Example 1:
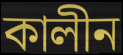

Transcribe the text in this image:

কালীন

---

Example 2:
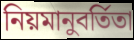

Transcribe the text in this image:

নিয়মানুবর্তিতা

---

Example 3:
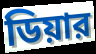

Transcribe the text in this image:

ডিয়ার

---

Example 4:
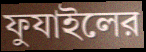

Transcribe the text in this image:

ফুযাইলের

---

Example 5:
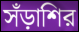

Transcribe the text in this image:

সঁড়াশির